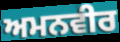
ਅਮਨਵੀਰ